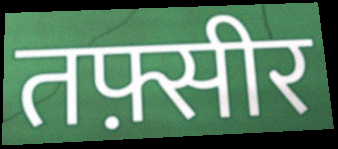
तफ़्सीर